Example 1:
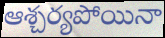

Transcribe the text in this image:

ఆశ్చర్యపోయినా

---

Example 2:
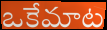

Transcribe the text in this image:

ఒకేమాట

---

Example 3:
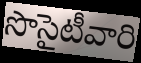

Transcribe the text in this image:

సొసైటీవారి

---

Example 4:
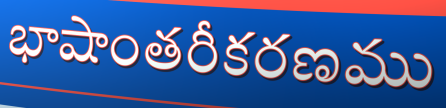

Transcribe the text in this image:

భాషాంతరీకరణము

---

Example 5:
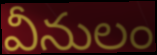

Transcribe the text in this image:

వీనులం